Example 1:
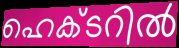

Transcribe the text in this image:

ഹെക്ടറിൽ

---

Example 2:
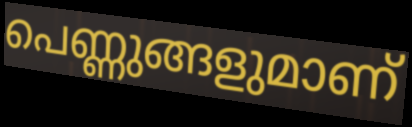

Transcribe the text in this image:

പെണ്ണുങ്ങളുമാണ്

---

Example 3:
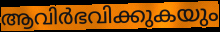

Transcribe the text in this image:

ആവിർഭവിക്കുകയും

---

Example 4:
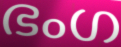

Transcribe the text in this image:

ഭംഗ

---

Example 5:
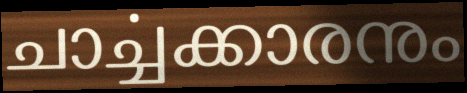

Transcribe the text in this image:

ചാൎച്ചക്കാരനും